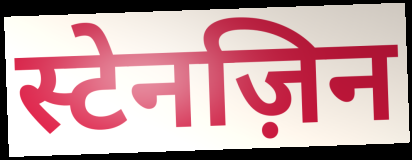
स्टेनज़िन